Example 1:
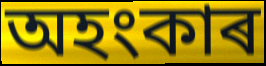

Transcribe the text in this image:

অহংকাৰ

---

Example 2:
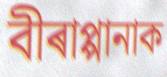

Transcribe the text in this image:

বীৰাপ্পানাক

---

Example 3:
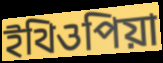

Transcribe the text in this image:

ইথিওপিয়া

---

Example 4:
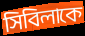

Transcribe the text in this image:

সিবিলাকে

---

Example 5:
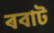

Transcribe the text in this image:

ৰবাট